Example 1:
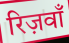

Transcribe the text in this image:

रिज़वाँ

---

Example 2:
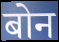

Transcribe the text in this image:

बोन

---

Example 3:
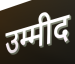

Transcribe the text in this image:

उम्मीद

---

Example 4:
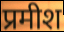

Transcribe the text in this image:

प्रमीश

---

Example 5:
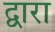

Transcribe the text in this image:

द्वारा